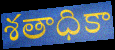
శతాధికా